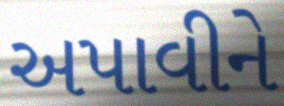
અપાવીને